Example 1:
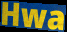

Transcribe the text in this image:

Hwa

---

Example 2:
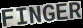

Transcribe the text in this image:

FINGER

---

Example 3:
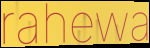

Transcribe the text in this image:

rahewa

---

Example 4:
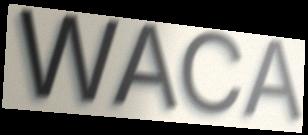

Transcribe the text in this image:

WACA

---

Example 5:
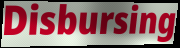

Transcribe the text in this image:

Disbursing